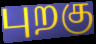
புறகு